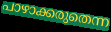
പാഴാക്കരുതെന്ന